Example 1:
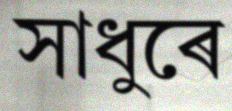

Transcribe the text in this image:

সাধুৰে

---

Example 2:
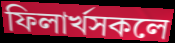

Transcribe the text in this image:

ফিলাৰ্খসকলে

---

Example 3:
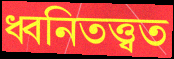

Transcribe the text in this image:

ধ্বনিতত্ত্বত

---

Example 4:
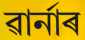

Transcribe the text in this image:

ৱাৰ্নাৰ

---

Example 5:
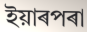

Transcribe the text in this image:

ইয়াৰপৰা